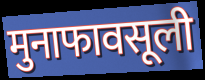
मुनाफावसूली